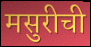
मसुरीची